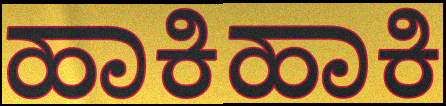
ಹಾಕಿಹಾಕಿ